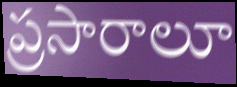
ప్రసారాలూ